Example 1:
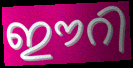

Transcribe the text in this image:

ഈറി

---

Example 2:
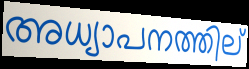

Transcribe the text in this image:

അധ്യാപനത്തില്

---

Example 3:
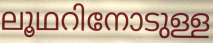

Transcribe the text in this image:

ലൂഥറിനോടുള്ള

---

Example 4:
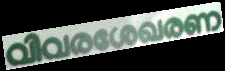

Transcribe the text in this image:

വിവരശേഖരണ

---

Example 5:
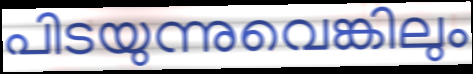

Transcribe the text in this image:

പിടയുന്നുവെങ്കിലും